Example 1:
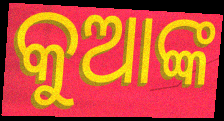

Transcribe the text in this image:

କୁଆଙ୍କ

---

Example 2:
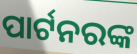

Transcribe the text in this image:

ପାର୍ଟନରଙ୍କ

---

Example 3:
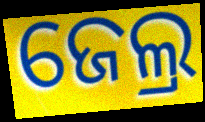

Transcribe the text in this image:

ଜେଲ୍ର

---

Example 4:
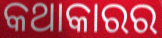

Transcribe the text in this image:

କଥାକାରର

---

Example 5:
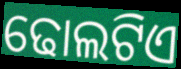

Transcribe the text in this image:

ଢୋଲଟିଏ